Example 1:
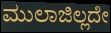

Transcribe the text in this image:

ಮುಲಾಜಿಲ್ಲದೇ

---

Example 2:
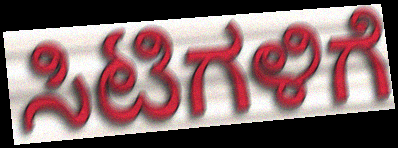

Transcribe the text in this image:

ಸಿಟಿಗಳಿಗೆ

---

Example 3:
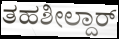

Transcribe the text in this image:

ತಹಶೀಲ್ದಾರ್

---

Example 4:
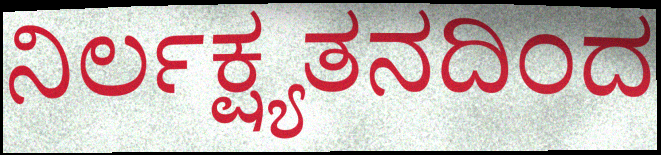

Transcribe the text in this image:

ನಿರ್ಲಕ್ಷ್ಯತನದಿಂದ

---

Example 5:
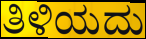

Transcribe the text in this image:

ತಿಳಿಯದು